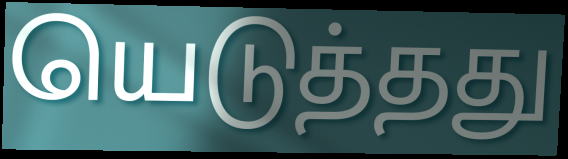
யெடுத்தது